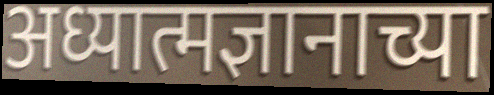
अध्यात्मज्ञानाच्या